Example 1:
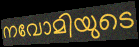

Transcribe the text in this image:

നവോമിയുടെ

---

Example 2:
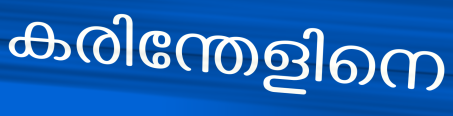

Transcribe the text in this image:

കരിന്തേളിനെ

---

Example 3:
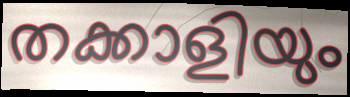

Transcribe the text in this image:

തക്കാളിയും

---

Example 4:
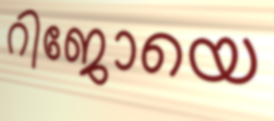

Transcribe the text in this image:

റിജോയെ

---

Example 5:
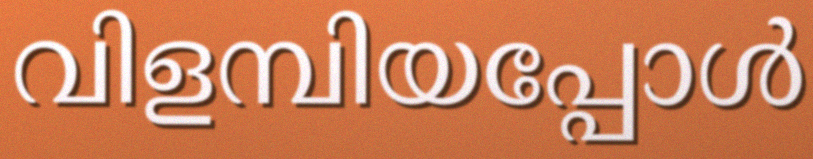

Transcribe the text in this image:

വിളമ്പിയപ്പോൾ